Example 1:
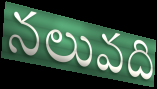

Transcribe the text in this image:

నలువది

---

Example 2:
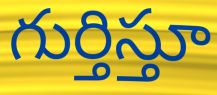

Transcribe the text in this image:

గుర్తిస్తూ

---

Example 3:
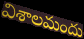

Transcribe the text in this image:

విశాలమందు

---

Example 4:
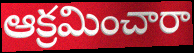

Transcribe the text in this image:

ఆక్రమించారా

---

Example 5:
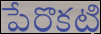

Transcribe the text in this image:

పేరొకటి